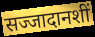
सज्जादानशीं